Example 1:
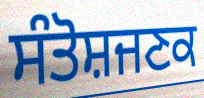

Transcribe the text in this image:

ਸੰਤੋਸ਼ਜਣਕ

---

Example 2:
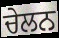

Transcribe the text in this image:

ਚੇਲਨ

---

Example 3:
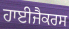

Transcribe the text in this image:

ਹਾਈਜੈਕਰਸ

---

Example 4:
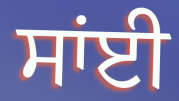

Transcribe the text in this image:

ਸਾਂਈ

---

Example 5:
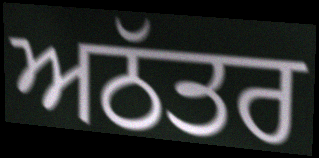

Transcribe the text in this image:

ਅਠੱਤਰ